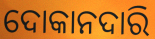
ଦୋକାନଦାରି